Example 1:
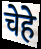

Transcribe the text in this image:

चेहे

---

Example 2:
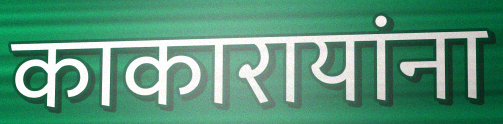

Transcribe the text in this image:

काकारायांना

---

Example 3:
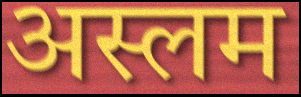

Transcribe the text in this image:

अस्लम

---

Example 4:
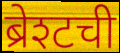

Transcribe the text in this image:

ब्रेश्टची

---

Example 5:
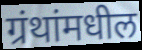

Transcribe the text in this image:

ग्रंथांमधील